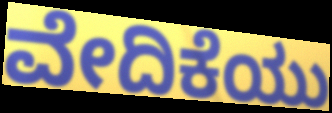
ವೇದಿಕೆಯು